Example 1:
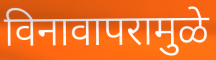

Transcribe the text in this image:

विनावापरामुळे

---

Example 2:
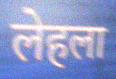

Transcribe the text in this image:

लेहला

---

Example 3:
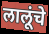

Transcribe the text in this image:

लालूंचे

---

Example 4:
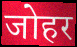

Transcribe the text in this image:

जोहर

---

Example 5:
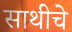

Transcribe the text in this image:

साथीचे